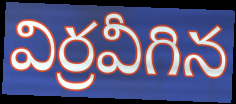
విర్రవీగిన